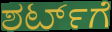
ಶರ್ಟ್‌ಗೆ